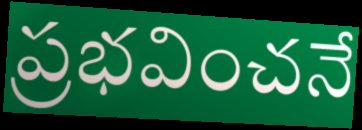
ప్రభవించనే